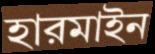
হারমাইন